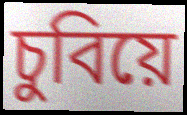
চুবিয়ে